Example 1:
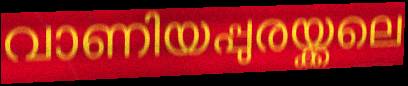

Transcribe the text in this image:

വാണിയപ്പുരയ്ക്കലെ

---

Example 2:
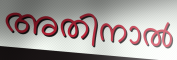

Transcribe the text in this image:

അതിനാൽ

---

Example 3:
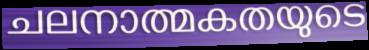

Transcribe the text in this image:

ചലനാത്മകതയുടെ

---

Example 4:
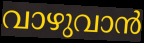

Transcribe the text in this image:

വാഴുവാൻ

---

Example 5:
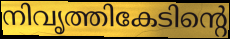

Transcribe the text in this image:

നിവൃത്തികേടിന്റെ